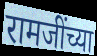
रामजींच्या